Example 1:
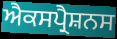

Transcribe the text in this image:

ਐਕਸਪ੍ਰੈਸ਼ਨਸ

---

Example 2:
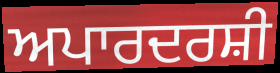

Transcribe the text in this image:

ਅਪਾਰਦਰਸ਼ੀ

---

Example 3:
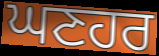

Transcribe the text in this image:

ਘਣਹਰ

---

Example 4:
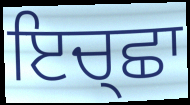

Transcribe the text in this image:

ਇਚ੍ਛਾ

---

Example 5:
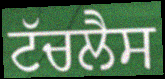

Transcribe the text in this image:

ਟੱਚਲੈਸ